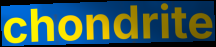
chondrite